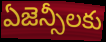
ఏజెన్సీలకు